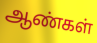
ஆண்கள்